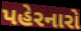
પહેરનારો